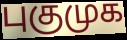
புகுமுக